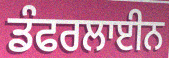
ਡੰਫਰਲਾਈਨ